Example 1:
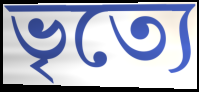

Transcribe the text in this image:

ভৃত্যে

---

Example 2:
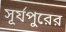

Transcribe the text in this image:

সূর্যপুরের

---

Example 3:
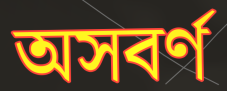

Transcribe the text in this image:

অসবর্ণ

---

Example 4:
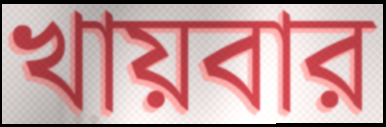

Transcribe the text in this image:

খায়বার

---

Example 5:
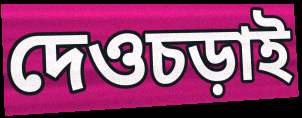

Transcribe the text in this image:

দেওচড়াই